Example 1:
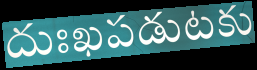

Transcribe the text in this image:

దుఃఖపడుటకు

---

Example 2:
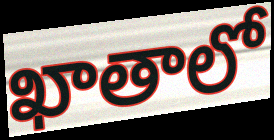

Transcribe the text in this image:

ఖాతాలో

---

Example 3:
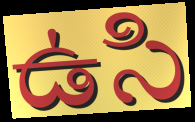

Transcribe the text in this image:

ఉసి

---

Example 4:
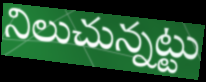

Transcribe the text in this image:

నిలుచున్నట్టు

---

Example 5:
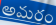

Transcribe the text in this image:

అమరం